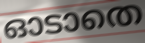
ഓടാതെ